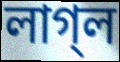
লাগ্‌ল